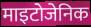
माइटोजेनिक